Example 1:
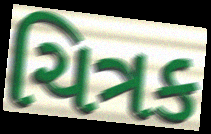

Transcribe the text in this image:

ચિત્રક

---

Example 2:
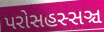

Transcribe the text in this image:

પરોસહસ્સઞ્ચ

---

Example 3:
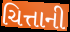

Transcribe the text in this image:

ચિત્તાની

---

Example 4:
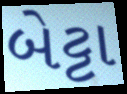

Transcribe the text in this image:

બેટ્ટા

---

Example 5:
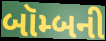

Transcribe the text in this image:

બૉમ્બની